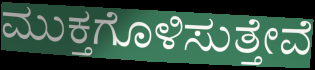
ಮುಕ್ತಗೊಳಿಸುತ್ತೇವೆ